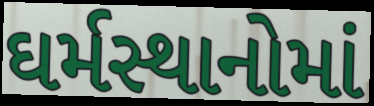
ઘર્મસ્થાનોમાં